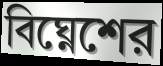
বিঘ্নেশের